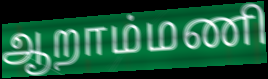
ஆறாம்மணி